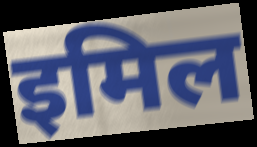
इमिल